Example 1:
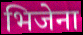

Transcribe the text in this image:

भिजेना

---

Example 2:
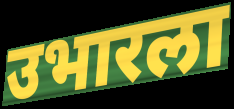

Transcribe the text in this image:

उभारला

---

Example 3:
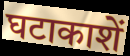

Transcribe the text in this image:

घटाकाशें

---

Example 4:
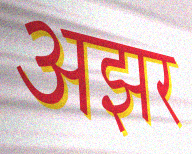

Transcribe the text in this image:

अझर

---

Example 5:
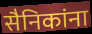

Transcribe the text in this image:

सैनिकांना